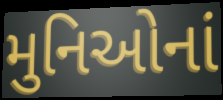
મુનિઓનાં